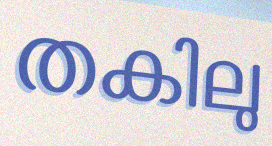
തകിലു